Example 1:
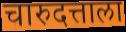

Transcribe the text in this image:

चारुदत्ताला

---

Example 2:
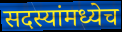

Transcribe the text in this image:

सदस्यांमध्येच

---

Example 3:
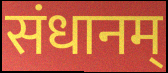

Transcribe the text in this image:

संधानम्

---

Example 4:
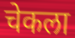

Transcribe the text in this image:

चेकला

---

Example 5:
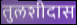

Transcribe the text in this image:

तुलशीदास